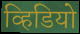
व्हिडियो